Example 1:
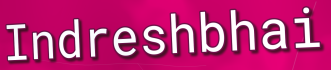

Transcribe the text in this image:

Indreshbhai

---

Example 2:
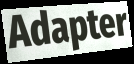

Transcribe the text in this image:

Adapter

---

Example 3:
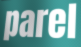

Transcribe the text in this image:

parel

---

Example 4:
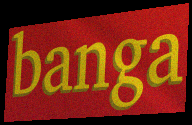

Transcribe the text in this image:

banga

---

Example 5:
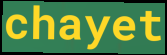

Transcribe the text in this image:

chayet